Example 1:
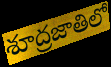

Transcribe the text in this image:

శూద్రజాతిలో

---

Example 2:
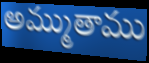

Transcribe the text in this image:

అమ్ముతాము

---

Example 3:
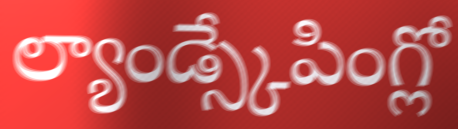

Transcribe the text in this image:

ల్యాండ్స్కేపింగ్లో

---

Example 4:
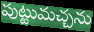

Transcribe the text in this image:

పుట్టుమచ్చను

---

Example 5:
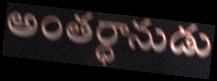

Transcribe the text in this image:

అంతర్ధానుడు